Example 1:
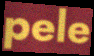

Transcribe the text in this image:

pele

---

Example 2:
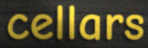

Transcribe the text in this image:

cellars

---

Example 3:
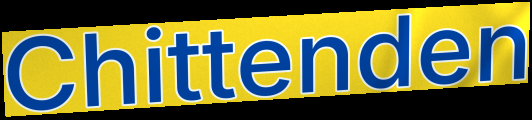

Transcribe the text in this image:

Chittenden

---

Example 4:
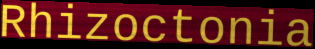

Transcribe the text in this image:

Rhizoctonia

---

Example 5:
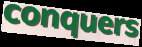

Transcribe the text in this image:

conquers